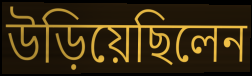
উড়িয়েছিলেন